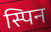
स्पिन